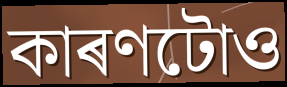
কাৰণটোও